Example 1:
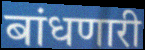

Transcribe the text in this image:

बांधणारी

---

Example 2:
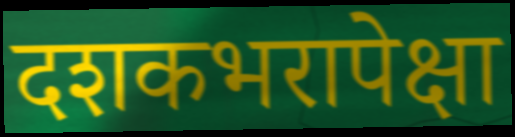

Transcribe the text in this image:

दशकभरापेक्षा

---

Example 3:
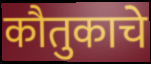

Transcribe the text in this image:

कौतुकाचे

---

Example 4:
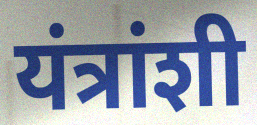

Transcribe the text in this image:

यंत्रांशी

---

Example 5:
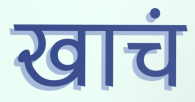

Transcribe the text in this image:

खाचं